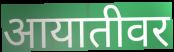
आयातीवर